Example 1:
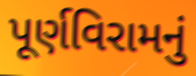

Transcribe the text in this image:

પૂર્ણવિરામનું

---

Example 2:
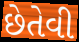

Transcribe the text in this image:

છેતેવી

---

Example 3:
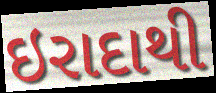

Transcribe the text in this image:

ઇરાદાથી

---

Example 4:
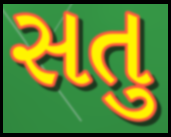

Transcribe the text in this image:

સતુ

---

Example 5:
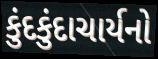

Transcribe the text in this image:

કુંદકુંદાચાર્યનો